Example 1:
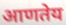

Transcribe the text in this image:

आणतेय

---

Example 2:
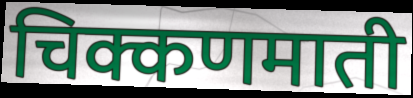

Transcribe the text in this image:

चिक्कणमाती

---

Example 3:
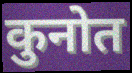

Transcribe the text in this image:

कुनोत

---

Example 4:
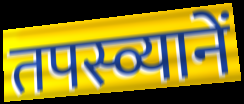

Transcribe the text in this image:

तपस्व्यानें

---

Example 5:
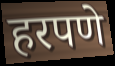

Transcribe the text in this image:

हरपणे